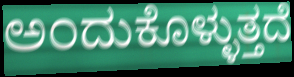
ಅಂದುಕೊಳ್ಳುತ್ತದೆ